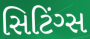
સિટિંગ્સ